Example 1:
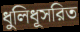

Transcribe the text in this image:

ধুলিধূসরিত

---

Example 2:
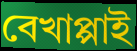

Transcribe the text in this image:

বেখাপ্পাই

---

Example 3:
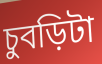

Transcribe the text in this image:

চুবড়িটা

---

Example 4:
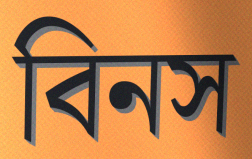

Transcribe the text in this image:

বিনস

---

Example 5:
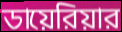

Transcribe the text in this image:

ডায়েরিয়ার